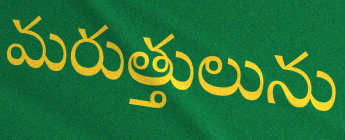
మరుత్తులును